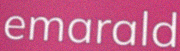
emarald